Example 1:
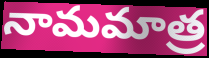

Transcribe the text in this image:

నామమాత్ర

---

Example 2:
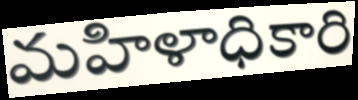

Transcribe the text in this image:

మహిళాధికారి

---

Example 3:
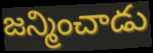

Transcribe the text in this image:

జన్మించాడు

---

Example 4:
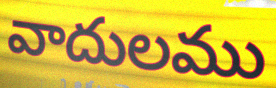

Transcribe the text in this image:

వాదులము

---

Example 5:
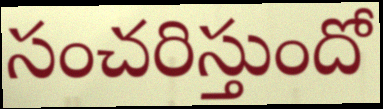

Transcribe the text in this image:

సంచరిస్తుందో